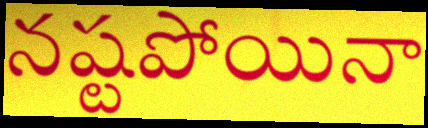
నష్టపోయినా